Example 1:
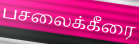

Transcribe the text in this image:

பசலைக்கீரை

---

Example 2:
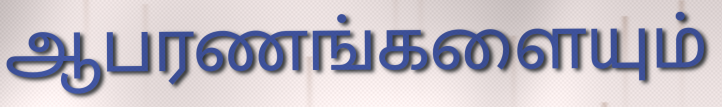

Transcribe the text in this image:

ஆபரணங்களையும்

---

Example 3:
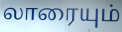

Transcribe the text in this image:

லாரையும்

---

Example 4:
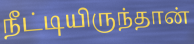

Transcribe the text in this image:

நீட்டியிருந்தான்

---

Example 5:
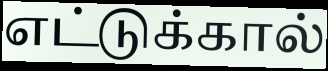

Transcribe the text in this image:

எட்டுக்கால்